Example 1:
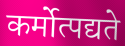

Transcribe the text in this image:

कर्मोत्पद्यते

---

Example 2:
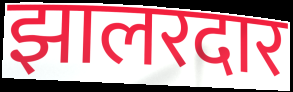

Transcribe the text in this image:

झालरदार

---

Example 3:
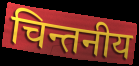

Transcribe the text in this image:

चिन्तनीय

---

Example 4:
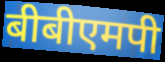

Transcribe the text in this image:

बीबीएमपी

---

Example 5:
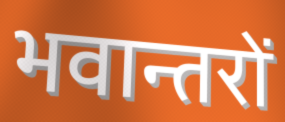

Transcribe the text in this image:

भवान्तरों